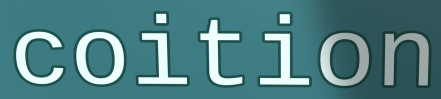
coition